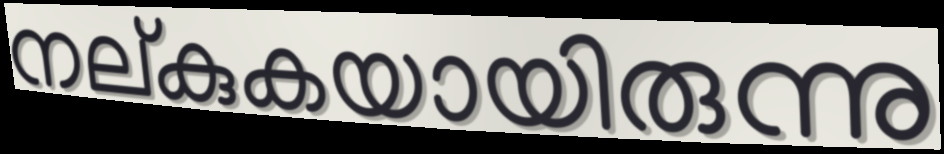
നല്കുകയായിരുന്നു